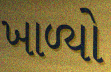
ખાળ્યો